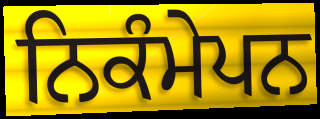
ਨਿਕੰਮੇਪਨ